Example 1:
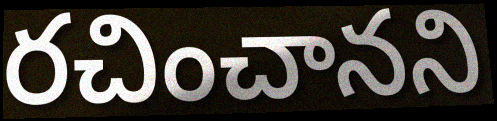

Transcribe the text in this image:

రచించానని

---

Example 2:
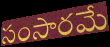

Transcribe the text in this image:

సంసారమే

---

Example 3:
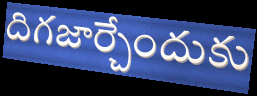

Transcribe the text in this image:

దిగజార్చేందుకు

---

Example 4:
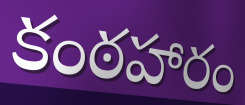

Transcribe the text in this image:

కంఠహారం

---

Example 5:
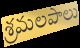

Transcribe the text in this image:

శ్రమలపాలు